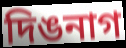
দিঙনাগ